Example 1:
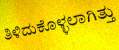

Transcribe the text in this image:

ತಿಳಿದುಕೊಳ್ಳಲಾಗಿತ್ತು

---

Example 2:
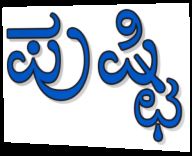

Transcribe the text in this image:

ಪುಷ್ಟಿ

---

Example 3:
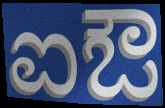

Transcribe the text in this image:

ಐಔ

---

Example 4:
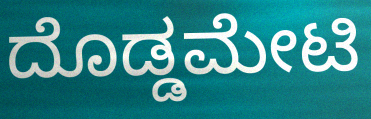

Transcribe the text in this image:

ದೊಡ್ಡಮೇಟಿ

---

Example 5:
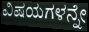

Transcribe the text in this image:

ವಿಷಯಗಳನ್ನೇ